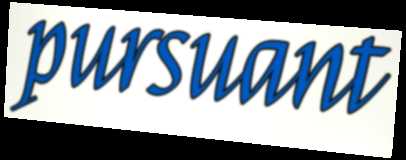
pursuant